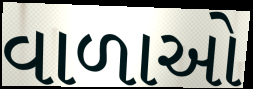
વાળાઓ